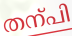
തന്പി